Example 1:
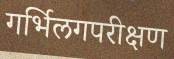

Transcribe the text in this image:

गर्भिलगपरीक्षण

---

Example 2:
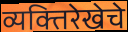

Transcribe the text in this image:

व्यक्तिरेखेचे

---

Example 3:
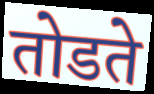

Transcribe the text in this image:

तोडते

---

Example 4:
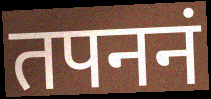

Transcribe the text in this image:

तपननं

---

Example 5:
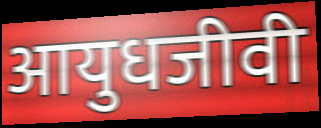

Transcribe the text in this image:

आयुधजीवी